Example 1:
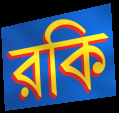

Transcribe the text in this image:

রকি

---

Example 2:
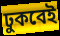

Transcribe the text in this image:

ঢুকবেই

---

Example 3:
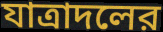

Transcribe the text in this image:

যাত্রাদলের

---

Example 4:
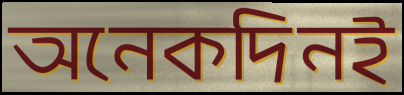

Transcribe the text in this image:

অনেকদিনই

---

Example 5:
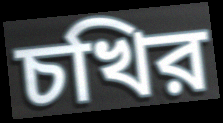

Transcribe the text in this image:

চখির